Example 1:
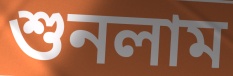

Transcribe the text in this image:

শুনলাম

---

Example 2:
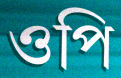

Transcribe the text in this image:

ওপি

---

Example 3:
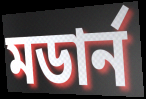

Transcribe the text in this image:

মডার্ন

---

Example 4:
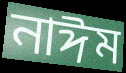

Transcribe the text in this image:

নাঈম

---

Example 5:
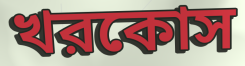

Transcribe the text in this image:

খরকোস